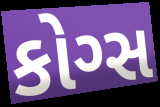
કોગ્સ